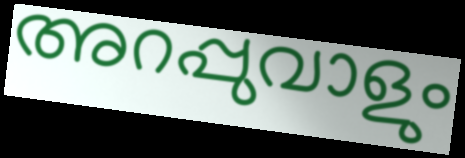
അറപ്പുവാളും